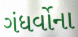
ગંધર્વોના